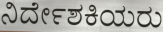
ನಿರ್ದೇಶಕಿಯರು